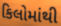
કિલોમાંથી